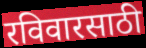
रविवारसाठी